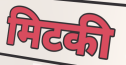
मिटकी